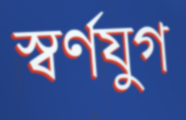
স্বর্ণযুগ